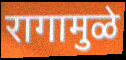
रागामुळे